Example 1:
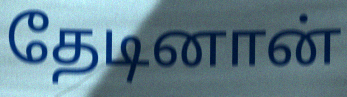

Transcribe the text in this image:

தேடினான்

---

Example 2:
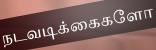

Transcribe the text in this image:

நடவடிக்கைகளோ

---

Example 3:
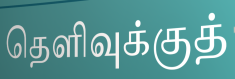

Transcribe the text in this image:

தெளிவுக்குத்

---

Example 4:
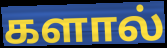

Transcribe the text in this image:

களால்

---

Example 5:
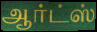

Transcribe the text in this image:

ஆர்ட்ஸ்